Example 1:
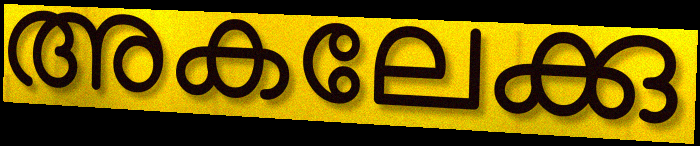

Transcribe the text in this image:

അകലേക്കു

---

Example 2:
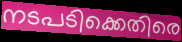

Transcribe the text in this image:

നടപടിക്കെതിരെ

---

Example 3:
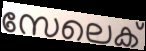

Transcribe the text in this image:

സേലെക്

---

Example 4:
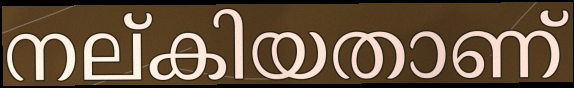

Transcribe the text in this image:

നല്കിയതാണ്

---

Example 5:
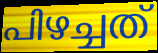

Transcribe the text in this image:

പിഴച്ചത്